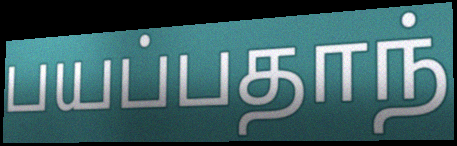
பயப்பதாந்